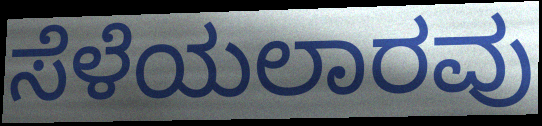
ಸೆಳೆಯಲಾರವು